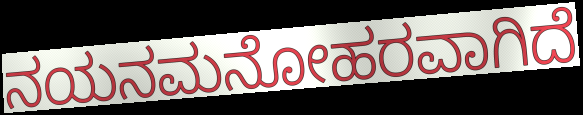
ನಯನಮನೋಹರವಾಗಿದೆ